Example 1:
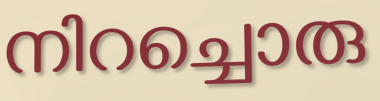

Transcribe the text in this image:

നിറച്ചൊരു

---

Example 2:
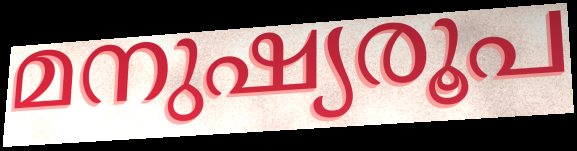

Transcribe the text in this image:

മനുഷ്യരൂപ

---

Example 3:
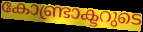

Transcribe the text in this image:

കോണ്ട്രാക്ടറുടെ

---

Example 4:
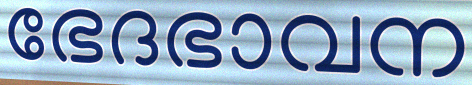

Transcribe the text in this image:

ഭേദഭാവന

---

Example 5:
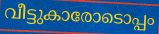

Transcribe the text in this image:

വീട്ടുകാരോടൊപ്പം